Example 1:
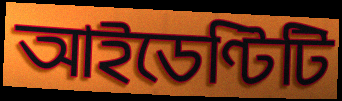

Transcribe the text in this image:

আইডেণ্টিটি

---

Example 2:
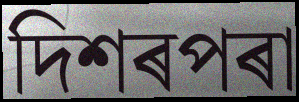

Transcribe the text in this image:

দিশৰপৰা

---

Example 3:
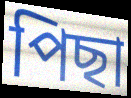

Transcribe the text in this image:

পিছা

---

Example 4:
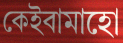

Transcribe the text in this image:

কেইবামাহো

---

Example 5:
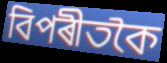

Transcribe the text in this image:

বিপৰীতকৈ